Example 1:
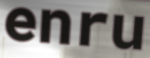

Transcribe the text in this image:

enru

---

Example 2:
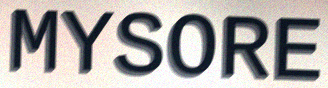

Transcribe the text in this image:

MYSORE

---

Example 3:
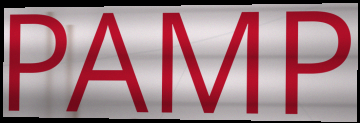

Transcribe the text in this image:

PAMP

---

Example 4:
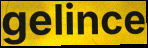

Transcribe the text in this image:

gelince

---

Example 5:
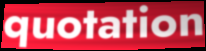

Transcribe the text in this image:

quotation